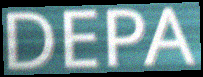
DEPA